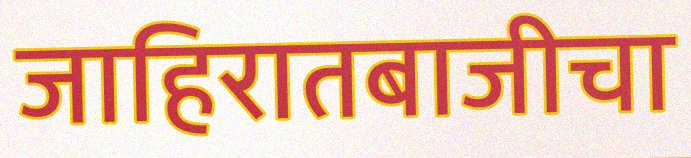
जाहिरातबाजीचा